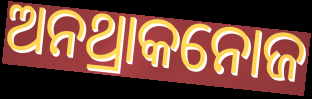
ଅନଥ୍ରାକନୋଜ